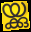
യ്ക്കു